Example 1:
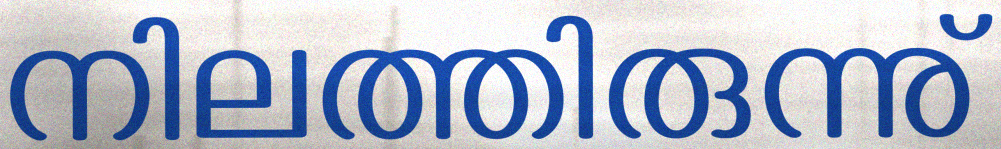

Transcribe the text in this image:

നിലത്തിരുന്നു്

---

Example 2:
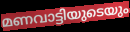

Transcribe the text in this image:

മണവാട്ടിയുടെയും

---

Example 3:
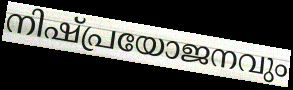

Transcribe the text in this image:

നിഷ്പ്രയോജനവും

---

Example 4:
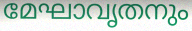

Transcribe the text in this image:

മേഘാവൃതനും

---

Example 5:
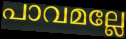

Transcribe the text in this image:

പാവമല്ലേ